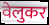
वेलुकर